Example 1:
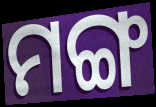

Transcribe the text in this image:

ମଙ୍ଗ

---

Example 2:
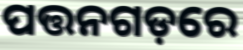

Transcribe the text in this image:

ପତ୍ତନଗଡ଼ରେ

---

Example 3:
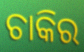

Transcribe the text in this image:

ଚାକିର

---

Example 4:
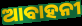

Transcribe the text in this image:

ଆବାହନୀ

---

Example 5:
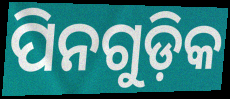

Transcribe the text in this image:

ପିନଗୁଡ଼ିକ